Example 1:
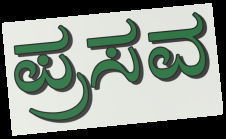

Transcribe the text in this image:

ಪ್ರಸವ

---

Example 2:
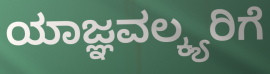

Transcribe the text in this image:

ಯಾಜ್ಞವಲ್ಕ್ಯರಿಗೆ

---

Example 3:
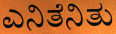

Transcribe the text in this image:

ಎನಿತೆನಿತು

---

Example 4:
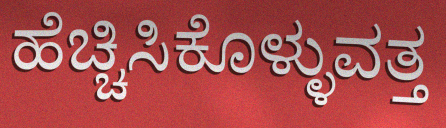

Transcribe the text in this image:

ಹೆಚ್ಚಿಸಿಕೊಳ್ಳುವತ್ತ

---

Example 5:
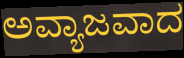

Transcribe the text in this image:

ಅವ್ಯಾಜವಾದ